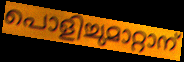
പൊളിച്ചുമാറ്റാന്